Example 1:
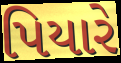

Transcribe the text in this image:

પિયારે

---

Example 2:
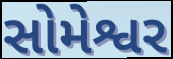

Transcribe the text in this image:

સોમેશ્વર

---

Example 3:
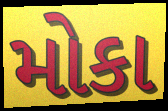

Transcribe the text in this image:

મોકા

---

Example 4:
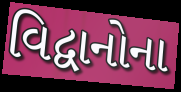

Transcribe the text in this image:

વિદ્વાનોના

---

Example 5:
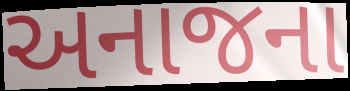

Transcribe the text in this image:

અનાજના